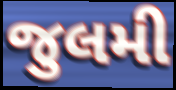
જુલમી